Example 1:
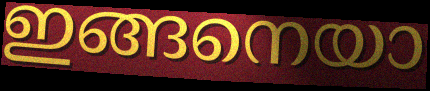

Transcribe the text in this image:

ഇങ്ങനെയാ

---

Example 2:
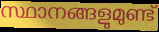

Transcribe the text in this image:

സ്ഥാനങ്ങളുമുണ്ട്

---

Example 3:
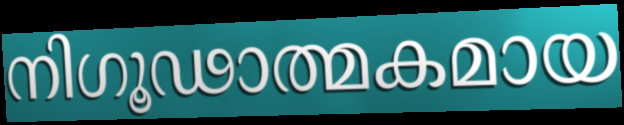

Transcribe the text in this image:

നിഗൂഢാത്മകമായ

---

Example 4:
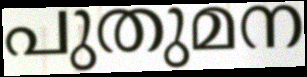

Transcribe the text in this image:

പുതുമന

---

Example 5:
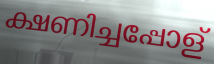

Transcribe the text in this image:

ക്ഷണിച്ചപ്പോള്